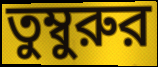
তুম্বুরুর